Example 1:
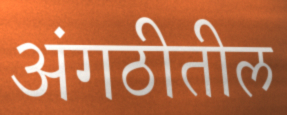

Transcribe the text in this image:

अंगठीतील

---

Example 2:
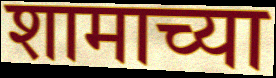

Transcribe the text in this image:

शामाच्या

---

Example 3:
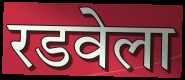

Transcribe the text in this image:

रडवेला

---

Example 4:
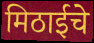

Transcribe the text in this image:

मिठाईचे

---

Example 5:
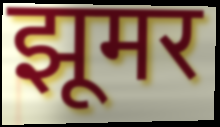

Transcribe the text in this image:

झूमर